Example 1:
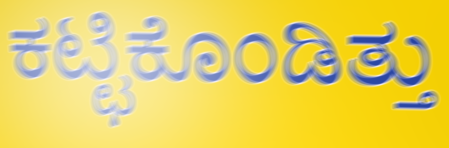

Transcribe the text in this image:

ಕಟ್ಟಿಕೊಂಡಿತ್ತು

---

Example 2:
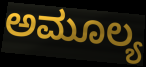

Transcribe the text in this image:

ಅಮೂಲ್ಯ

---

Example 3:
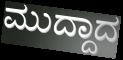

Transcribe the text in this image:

ಮುದ್ದಾದ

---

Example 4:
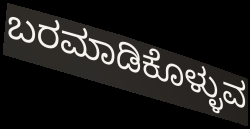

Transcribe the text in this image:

ಬರಮಾಡಿಕೊಳ್ಳುವ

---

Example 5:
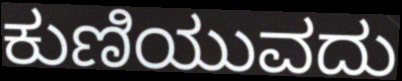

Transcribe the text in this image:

ಕುಣಿಯುವದು